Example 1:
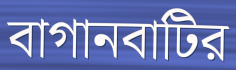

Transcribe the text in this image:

বাগানবাটির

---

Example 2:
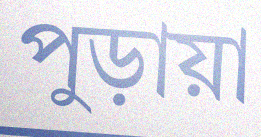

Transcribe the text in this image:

পুড়ায়া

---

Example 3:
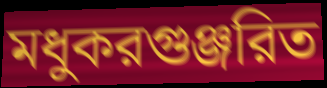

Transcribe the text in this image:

মধুকরগুঞ্জরিত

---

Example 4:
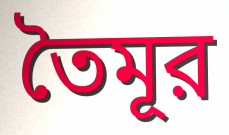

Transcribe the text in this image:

তৈমূর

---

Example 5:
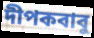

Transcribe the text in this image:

দীপকবাবু